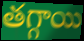
తగ్గాయి